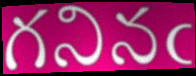
గనినఁ